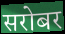
सरोबर